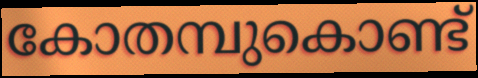
കോതമ്പുകൊണ്ട്